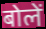
बोलें